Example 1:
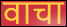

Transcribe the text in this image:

वाचा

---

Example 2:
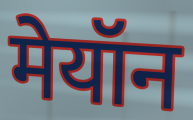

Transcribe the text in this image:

मेयॉन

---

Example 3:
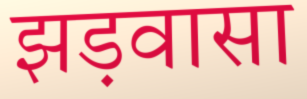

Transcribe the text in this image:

झड़वासा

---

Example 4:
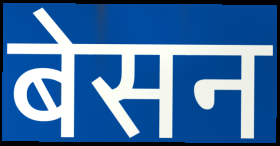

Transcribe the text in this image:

बेसन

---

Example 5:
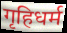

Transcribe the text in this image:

गृहिधर्म